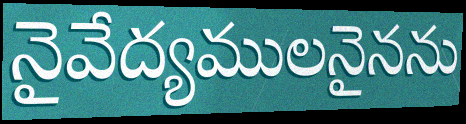
నైవేద్యములనైనను